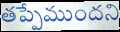
తప్పేముందని